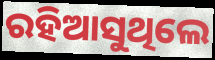
ରହିଆସୁଥିଲେ